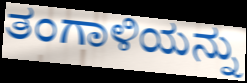
ತಂಗಾಳಿಯನ್ನು